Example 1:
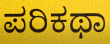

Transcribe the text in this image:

ಪರಿಕಥಾ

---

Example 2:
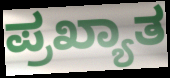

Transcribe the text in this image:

ಪ್ರಖ್ಯಾತ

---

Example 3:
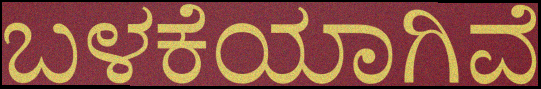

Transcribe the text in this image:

ಬಳಕೆಯಾಗಿವೆ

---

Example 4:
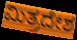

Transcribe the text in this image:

ಮಿತ್ರದೇಶ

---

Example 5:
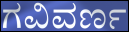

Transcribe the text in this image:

ಗವಿವರ್ಣ